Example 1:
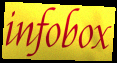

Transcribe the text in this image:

infobox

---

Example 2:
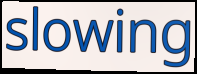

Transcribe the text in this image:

slowing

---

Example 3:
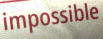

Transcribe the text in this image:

impossible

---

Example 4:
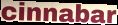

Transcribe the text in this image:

cinnabar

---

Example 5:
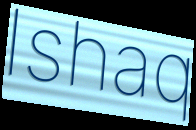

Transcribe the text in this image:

Ishaq